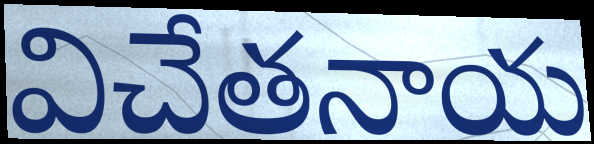
విచేతనాయ